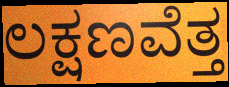
ಲಕ್ಷಣವೆತ್ತ